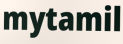
mytamil